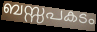
ബസ്സപകടം